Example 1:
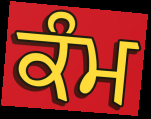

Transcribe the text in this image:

ਕੰਮ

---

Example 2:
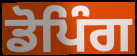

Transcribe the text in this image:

ਡੋਪਿੰਗ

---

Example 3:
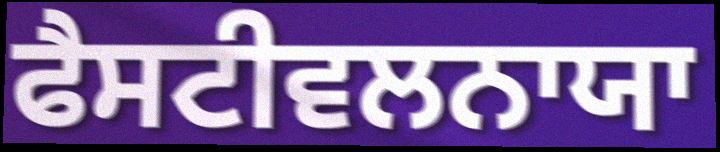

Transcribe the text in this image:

ਫੈਸਟੀਵਲਨਾਯਾ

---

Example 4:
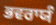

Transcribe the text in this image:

ਭਵਰਾਯੰ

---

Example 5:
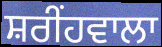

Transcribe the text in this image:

ਸ਼ਰੀਂਹਵਾਲਾ